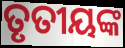
ତୃତୀୟଙ୍କ